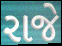
રાજે